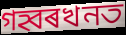
গহ্বৰখনত